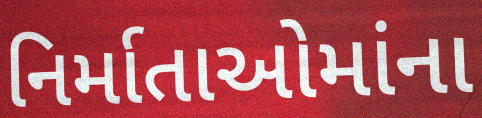
નિર્માતાઓમાંના